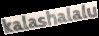
kalashalalu